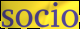
socio